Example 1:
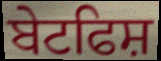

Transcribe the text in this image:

ਬੇਟਫਿਸ਼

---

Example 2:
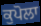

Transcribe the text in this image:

ਕੁਪੋਲਾ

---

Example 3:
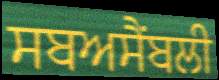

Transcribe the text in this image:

ਸਬਅਸੈਂਬਲੀ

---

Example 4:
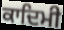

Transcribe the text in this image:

ਕਾਦਿਮੀ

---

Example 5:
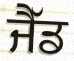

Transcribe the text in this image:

ਜੈੱਡ